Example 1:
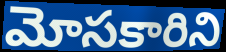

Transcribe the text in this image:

మోసకారిని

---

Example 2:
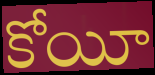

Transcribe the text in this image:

కోయీ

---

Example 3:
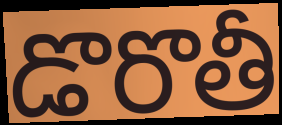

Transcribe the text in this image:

డొరొతీ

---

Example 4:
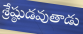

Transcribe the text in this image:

శ్రేష్ఠుడవుతాడు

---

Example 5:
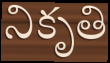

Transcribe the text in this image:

నికృతి